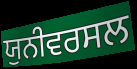
ਯੁਨੀਵਰਸਲ